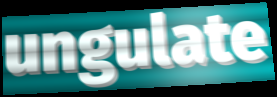
ungulate